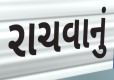
રાચવાનું